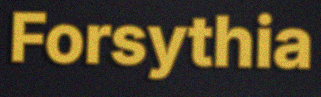
Forsythia